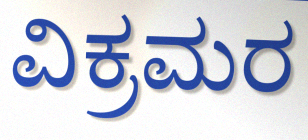
ವಿಕ್ರಮರ